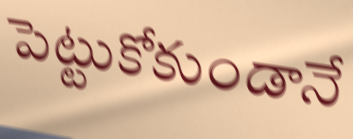
పెట్టుకోకుండానే